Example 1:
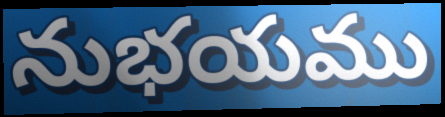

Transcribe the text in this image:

నుభయము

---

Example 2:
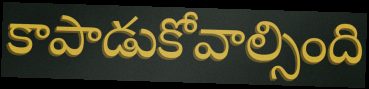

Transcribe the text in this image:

కాపాడుకోవాల్సింది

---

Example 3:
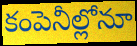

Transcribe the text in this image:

కంపెనీల్లోనూ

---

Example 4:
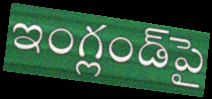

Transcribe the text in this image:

ఇంగ్లండ్‌పై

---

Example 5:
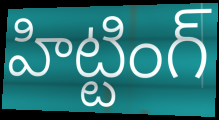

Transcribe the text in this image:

హిట్టింగ్